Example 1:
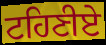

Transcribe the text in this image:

ਟਹਿਣੀਏ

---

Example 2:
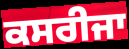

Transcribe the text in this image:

ਕਸਰੀਜਾ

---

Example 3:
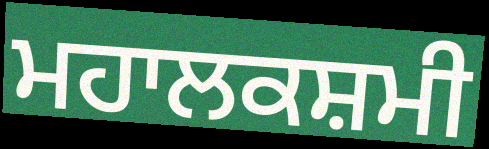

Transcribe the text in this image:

ਮਹਾਲਕਸ਼ਮੀ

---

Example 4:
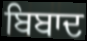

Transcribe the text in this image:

ਬਿਬਾਦ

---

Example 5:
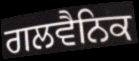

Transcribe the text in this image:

ਗਲਵੈਨਿਕ